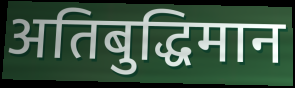
अतिबुद्धिमान